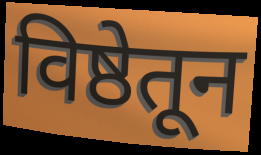
विष्ठेतून